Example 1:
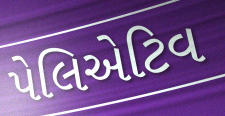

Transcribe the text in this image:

પેલિએટિવ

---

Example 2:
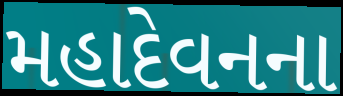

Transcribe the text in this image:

મહાદેવનના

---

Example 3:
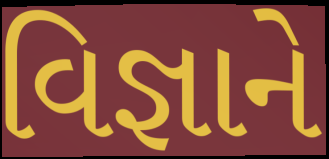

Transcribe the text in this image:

વિજ્ઞાને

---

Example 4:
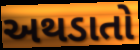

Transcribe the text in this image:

અથડાતો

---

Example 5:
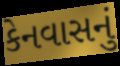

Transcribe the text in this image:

કેનવાસનું